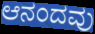
ಆನಂದವು